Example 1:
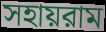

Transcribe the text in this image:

সহায়রাম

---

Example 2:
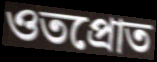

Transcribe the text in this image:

ওতপ্রোত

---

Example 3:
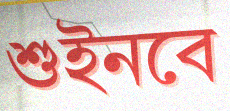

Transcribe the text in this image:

শুইনবে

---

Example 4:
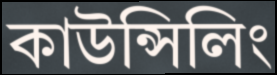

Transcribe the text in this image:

কাউন্সিলিং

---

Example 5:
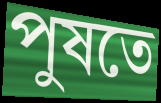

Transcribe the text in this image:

পুষতে